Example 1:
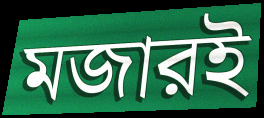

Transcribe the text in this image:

মজারই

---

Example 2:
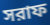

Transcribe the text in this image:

সরাফ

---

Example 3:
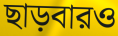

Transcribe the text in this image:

ছাড়বারও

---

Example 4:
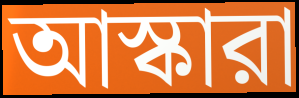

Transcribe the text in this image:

আস্কারা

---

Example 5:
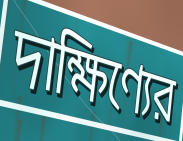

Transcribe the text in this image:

দাক্ষিণ্যের